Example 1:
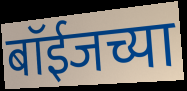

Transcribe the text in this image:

बॉईजच्या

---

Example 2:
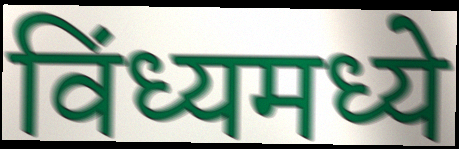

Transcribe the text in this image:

विंध्यमध्ये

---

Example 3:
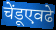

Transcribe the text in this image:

चेंडूएवढे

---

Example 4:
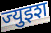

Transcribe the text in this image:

ज्युइश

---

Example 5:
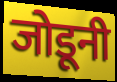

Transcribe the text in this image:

जोडूनी